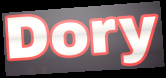
Dory